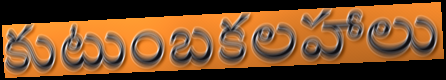
కుటుంబకలహాలు